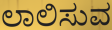
ಲಾಲಿಸುವ